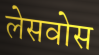
लेसवोस